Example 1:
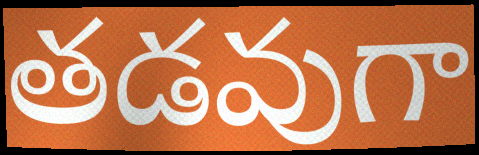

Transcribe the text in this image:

తడవుగా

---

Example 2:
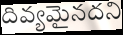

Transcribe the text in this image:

దివ్యమైనదని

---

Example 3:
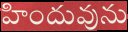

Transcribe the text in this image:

హిందువును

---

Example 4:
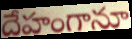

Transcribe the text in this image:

దేహంగానూ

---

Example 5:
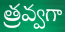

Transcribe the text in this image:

త్రవ్వగా